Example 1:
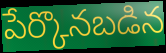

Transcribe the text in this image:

పేర్కొనబడిన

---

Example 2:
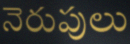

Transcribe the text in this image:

నెరుపులు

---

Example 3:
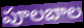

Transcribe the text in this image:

పూలబాల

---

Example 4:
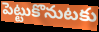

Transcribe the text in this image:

పెట్టుకొనుటకు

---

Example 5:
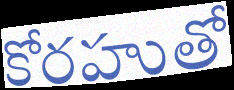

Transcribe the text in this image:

కోరహుతో